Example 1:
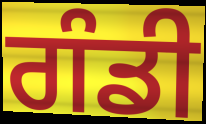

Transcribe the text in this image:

ਗੰਡੀ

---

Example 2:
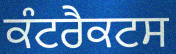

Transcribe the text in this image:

ਕੰਟਰੈਕਟਸ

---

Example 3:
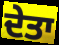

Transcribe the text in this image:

ਦੇਤਾ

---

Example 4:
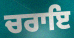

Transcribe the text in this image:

ਚਰਾਇ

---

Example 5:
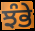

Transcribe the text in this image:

ਝੰਭੇ